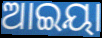
ଆଇୟା